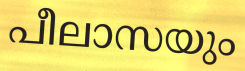
പീലാസയും